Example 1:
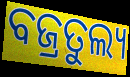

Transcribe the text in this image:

ବଜ୍ରତୁଲ୍ୟ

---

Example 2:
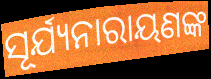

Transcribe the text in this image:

ସୂର୍ଯ୍ୟନାରାୟଣଙ୍କ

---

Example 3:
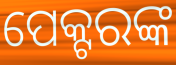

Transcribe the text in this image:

ପେକ୍ଟରଙ୍କ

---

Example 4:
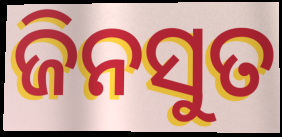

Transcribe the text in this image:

ଜିନସୁତ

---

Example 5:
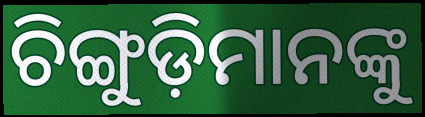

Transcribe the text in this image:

ଚିଙ୍ଗୁଡ଼ିମାନଙ୍କୁ